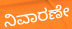
ನಿವಾರಣೇ